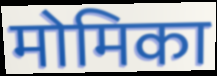
मोमिका